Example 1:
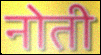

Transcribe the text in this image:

नोती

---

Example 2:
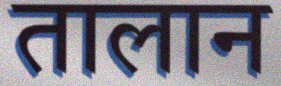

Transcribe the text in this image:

तालान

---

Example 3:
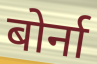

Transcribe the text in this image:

बोर्ना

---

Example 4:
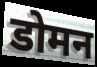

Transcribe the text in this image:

डोमन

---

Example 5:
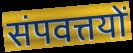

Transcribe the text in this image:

संपवत्तयों